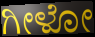
ಗೀಳೋ